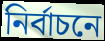
নিৰ্বাচনে